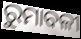
ରୁମାବଳୀ